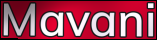
Mavani